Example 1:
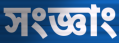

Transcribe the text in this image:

সংজ্ঞাং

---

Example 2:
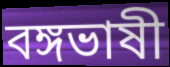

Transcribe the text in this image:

বঙ্গভাষী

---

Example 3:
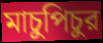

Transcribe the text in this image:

মাচুপিচুর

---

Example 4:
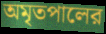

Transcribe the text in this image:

অমৃতপালের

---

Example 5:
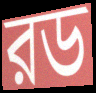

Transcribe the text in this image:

রড